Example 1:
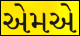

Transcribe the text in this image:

એમએ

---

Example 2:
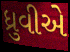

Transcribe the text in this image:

ધ્રુવીએ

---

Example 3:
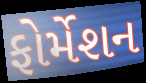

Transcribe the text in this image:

ફોર્મેશન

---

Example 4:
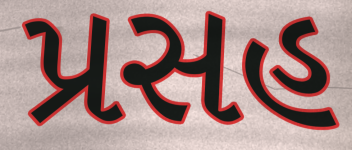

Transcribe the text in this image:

પ્રસહ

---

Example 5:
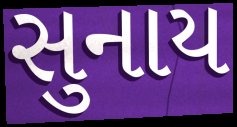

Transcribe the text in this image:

સુનાય